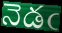
నెడఁ